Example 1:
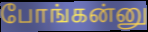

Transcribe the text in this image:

போங்கன்னு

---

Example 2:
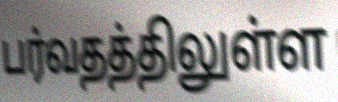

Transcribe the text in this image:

பர்வதத்திலுள்ள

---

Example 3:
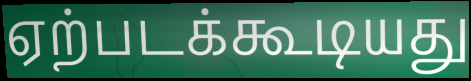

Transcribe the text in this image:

ஏற்படக்கூடியது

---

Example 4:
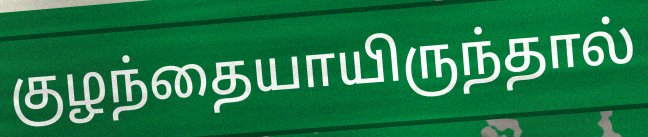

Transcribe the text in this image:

குழந்தையாயிருந்தால்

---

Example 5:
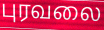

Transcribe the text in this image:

புரவலை